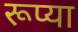
रूप्या